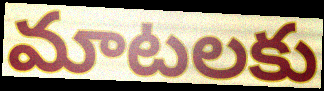
మాటలకు